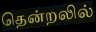
தென்றலில்